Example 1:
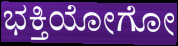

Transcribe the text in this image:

ಭಕ್ತಿಯೋಗೋ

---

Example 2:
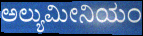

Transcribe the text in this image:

ಅಲ್ಯುಮೀನಿಯಂ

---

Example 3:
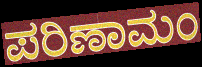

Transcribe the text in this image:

ಪರಿಣಾಮಂ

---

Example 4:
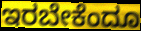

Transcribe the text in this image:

ಇರಬೇಕೆಂದೂ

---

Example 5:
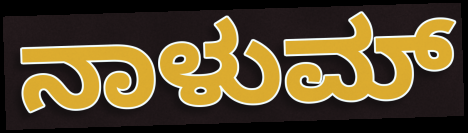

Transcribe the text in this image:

ನಾಳುಮ್